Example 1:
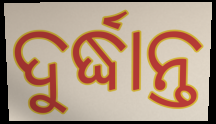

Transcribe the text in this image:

ଦୁର୍ଦ୍ଧାନ୍ତ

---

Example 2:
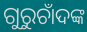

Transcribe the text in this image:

ଗୁରୁଚାଁଦଙ୍କ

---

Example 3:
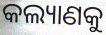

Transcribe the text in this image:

କଲ୍ୟାଣକୁ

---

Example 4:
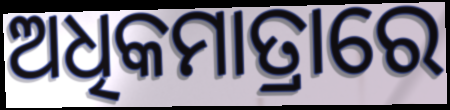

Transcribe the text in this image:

ଅଧିକମାତ୍ରାରେ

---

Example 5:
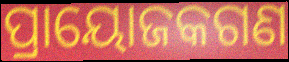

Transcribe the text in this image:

ପ୍ରାୟୋଜକଗଣ